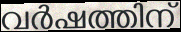
വർഷത്തിന്